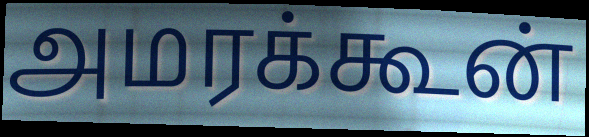
அமரக்கூன்